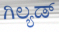
ಗಿಲ್ಯಡ್